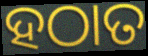
ହଠାତ